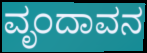
ವೃಂದಾವನ